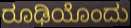
ರೂಢಿಯೊಂದು